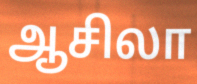
ஆசிலா